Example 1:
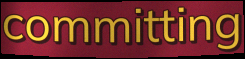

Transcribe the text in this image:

committing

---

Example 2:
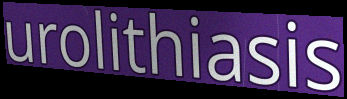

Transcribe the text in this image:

urolithiasis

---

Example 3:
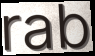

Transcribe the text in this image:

rab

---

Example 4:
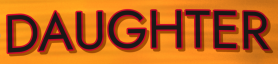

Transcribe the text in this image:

DAUGHTER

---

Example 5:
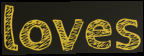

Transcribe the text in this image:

loves